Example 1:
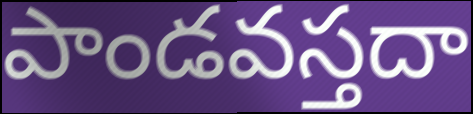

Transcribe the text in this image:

పాండవస్తదా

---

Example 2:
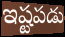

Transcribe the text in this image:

ఇష్టపడు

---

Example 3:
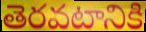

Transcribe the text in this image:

తెరవటానికి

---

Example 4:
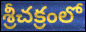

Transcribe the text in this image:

శ్రీచక్రంలో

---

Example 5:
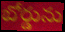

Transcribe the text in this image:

బోర్డును